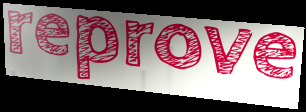
reprove